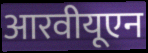
आरवीयूएन